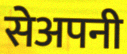
सेअपनी